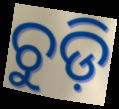
ଚୁଡ଼ି